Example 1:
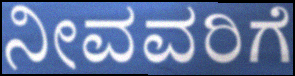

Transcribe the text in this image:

ನೀವವರಿಗೆ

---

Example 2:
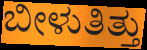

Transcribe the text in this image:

ಬೀಳುತಿತ್ತು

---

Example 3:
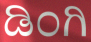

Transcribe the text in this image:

ಡಿಂಗಿ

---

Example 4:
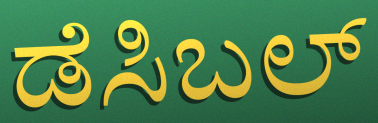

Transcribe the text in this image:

ಡೆಸಿಬಲ್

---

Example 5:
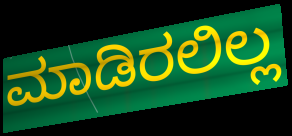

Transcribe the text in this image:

ಮಾಡಿರಲಿಲ್ಲ